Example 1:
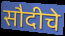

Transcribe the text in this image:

सौदीचे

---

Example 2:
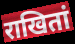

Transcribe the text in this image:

राखितां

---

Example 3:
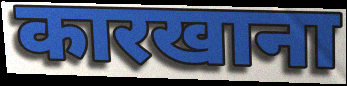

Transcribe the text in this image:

कारखाना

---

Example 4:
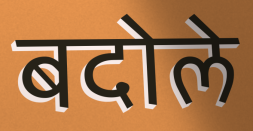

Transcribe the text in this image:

बदोले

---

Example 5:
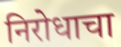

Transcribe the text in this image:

निरोधाचा